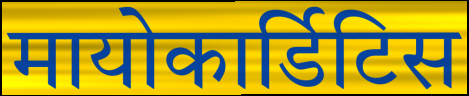
मायोकार्डिटिस